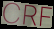
CRF